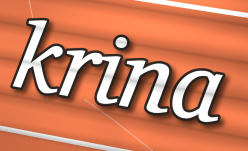
krina